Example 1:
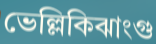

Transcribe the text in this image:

ভেল্লিকিঝাংগু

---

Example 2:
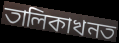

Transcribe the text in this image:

তালিকাখনত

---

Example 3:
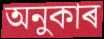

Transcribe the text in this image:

অনুকাৰ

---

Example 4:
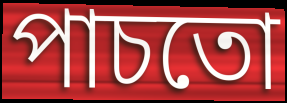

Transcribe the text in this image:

পাচতো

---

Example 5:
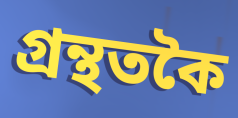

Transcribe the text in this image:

গ্ৰন্থতকৈ